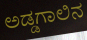
ಅಡ್ಡಗಾಲಿನ